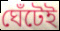
ঘেঁটেই